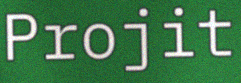
Projit